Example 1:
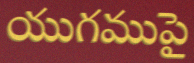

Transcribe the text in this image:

యుగముపై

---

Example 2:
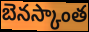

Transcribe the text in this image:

బెనస్కాంత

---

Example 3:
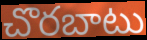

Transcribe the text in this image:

చొరబాటు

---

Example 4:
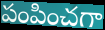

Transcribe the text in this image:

పంపించగా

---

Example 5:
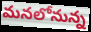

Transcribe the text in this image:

మనలోనున్న